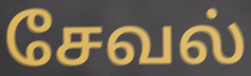
சேவல்